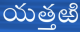
యత్తఱి